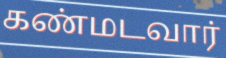
கண்மடவார்